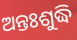
ଅନ୍ତଃଶୁଦ୍ଧି